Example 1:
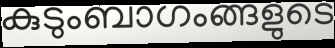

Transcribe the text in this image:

കുടുംബാഗംങ്ങളുടെ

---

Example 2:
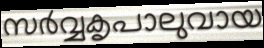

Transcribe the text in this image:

സർവ്വകൃപാലുവായ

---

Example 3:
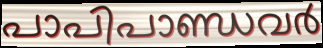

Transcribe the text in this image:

പാപിപാണ്ഡവർ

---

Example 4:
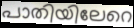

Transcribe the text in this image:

പാതിയിലേറെ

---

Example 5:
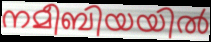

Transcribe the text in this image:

നമീബിയയിൽ